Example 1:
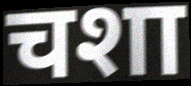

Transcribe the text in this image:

चशा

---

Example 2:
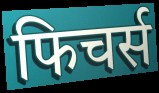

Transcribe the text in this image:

फिचर्स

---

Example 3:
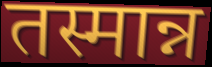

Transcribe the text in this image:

तस्मान्न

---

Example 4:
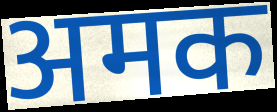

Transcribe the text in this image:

अमक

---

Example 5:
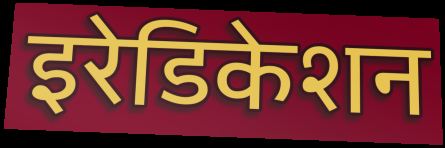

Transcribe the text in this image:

इरेडिकेशन